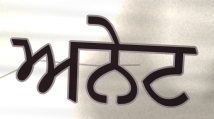
ਅਨੇਟ